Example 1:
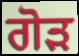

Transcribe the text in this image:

ਗੋੜ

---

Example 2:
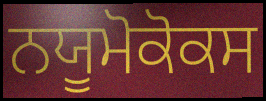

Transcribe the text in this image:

ਨਯੂਮੋਕੋਕਸ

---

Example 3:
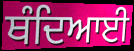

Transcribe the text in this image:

ਥੰਦਿਆਈ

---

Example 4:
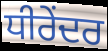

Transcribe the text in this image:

ਧੀਰੇਂਦਰ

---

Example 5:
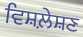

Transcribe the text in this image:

ਵਿਸ਼ਲ਼ੇਸ਼ਣ